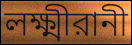
লক্ষ্মীরানী